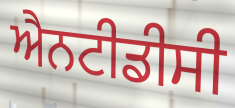
ਐਨਟੀਡੀਸੀ